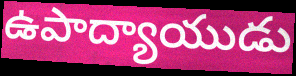
ఉపాద్యాయుడు